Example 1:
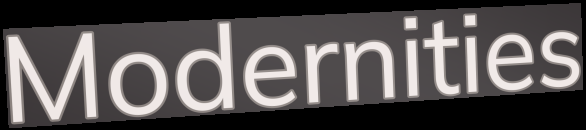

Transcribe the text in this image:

Modernities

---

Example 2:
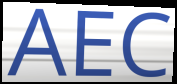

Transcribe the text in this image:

AEC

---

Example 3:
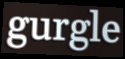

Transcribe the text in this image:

gurgle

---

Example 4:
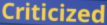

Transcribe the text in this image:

Criticized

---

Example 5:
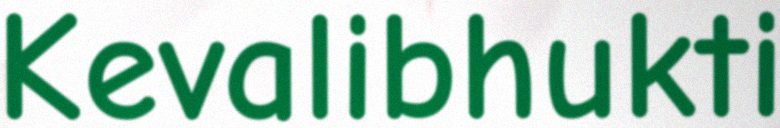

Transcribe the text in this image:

Kevalibhukti